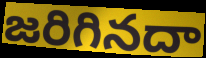
జరిగినదా